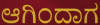
ಆಗಿಂದಾಗ